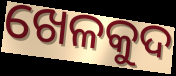
ଖେଳକୁଦ